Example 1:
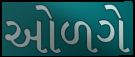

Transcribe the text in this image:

ઓળગે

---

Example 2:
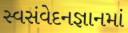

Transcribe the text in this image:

સ્વસંવેદનજ્ઞાનમાં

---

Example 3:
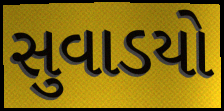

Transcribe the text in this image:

સુવાડયો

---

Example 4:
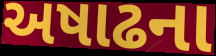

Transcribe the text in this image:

અષાઢના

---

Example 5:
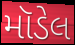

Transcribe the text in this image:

મૉડેલ